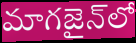
మాగజైన్‌లో